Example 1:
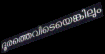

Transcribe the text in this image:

ദൂരത്തെവിടെയെങ്കിലും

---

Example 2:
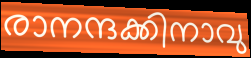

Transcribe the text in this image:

രാനന്ദക്കിനാവു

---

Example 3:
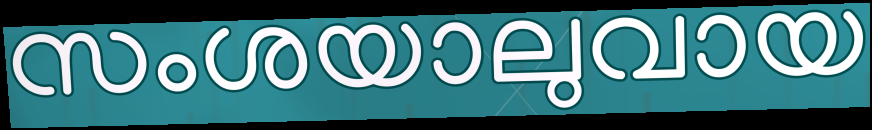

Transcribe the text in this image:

സംശയാലുവായ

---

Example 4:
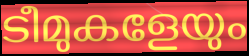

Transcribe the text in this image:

ടീമുകളേയും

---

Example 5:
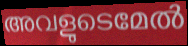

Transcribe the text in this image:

അവളുടെമേൽ